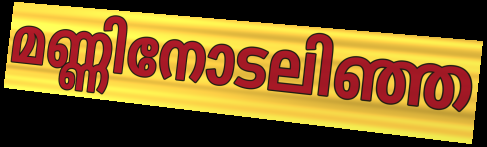
മണ്ണിനോടലിഞ്ഞ